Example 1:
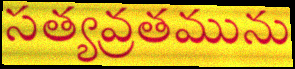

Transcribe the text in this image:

సత్యవ్రతమును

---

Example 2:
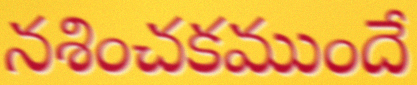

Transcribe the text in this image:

నశించకముందే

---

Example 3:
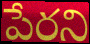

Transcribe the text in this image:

పేరని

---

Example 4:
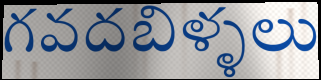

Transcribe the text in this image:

గవదబిళ్ళలు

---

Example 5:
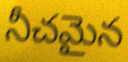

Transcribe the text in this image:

నీచమైన